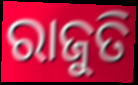
ରାଜୁତି